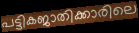
പട്ടികജാതിക്കാരിലെ